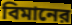
বিমানের